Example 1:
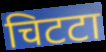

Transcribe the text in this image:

चिटटा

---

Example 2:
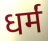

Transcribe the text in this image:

धर्म॑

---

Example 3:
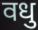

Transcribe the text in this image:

वधु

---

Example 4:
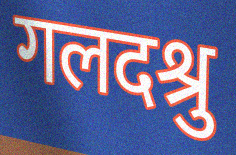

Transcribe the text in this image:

गलदश्रु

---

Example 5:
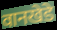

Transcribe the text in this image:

वानखेडे